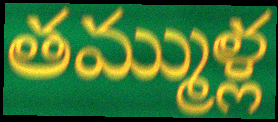
తమ్ముళ్ల